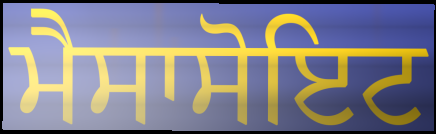
ਮੈਸਾਸੋਇਟ